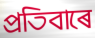
প্ৰতিবাৰে